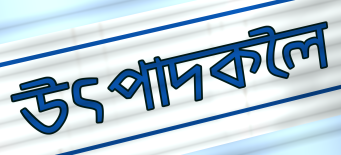
উৎপাদকলৈ